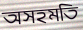
অসহমতি